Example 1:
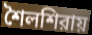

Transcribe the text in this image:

শৈলশিরায়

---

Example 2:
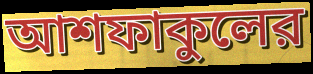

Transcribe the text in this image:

আশফাকুলের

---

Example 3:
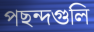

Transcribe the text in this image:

পছন্দগুলি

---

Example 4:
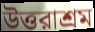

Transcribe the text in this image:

উত্তরাশ্রম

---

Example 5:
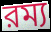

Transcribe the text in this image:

রম্য